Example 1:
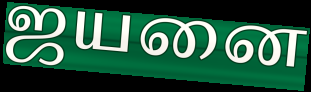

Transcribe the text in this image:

ஜயனை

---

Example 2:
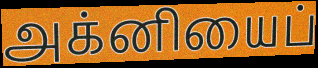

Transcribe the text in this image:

அக்னியைப்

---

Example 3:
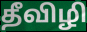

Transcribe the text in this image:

தீவிழி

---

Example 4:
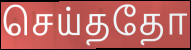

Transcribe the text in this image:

செய்ததோ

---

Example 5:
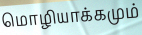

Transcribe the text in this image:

மொழியாக்கமும்